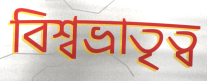
বিশ্বভ্রাতৃত্ব